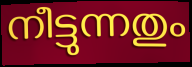
നീട്ടുന്നതും